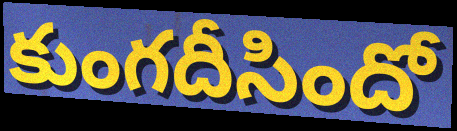
కుంగదీసిందో